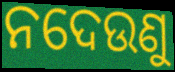
ନଦେଉଣୁ